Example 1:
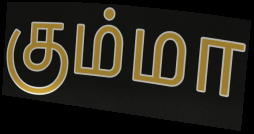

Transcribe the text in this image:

கும்மா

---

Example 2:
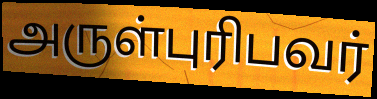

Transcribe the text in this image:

அருள்புரிபவர்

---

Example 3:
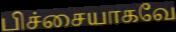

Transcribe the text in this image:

பிச்சையாகவே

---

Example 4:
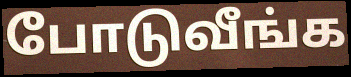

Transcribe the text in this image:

போடுவீங்க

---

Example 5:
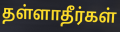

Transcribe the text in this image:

தள்ளாதீர்கள்